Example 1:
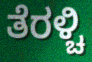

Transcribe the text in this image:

ತೆರಳ್ಚಿ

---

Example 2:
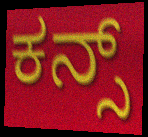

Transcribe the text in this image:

ಕನ್ಸ್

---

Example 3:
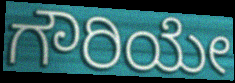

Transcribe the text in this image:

ಗೌರಿಯೇ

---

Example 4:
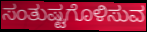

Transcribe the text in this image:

ಸಂತುಷ್ಟಗೊಳಿಸುವ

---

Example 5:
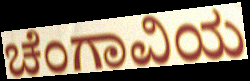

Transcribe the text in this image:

ಚೆಂಗಾವಿಯ